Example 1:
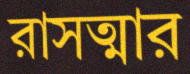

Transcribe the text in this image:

রাসত্মার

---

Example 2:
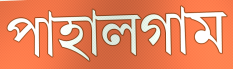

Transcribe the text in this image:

পাহালগাম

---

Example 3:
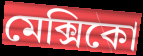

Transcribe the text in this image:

মেক্সিকো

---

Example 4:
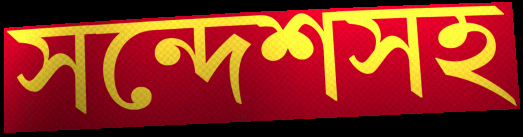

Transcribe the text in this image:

সন্দেশসহ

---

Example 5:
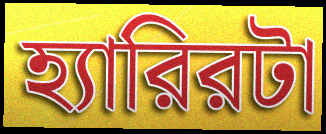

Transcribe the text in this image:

হ্যারিরটা